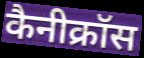
कैनीक्रॉस